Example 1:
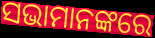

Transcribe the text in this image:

ସଭାମାନଙ୍କରେ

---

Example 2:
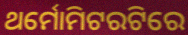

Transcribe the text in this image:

ଥର୍ମୋମିଟରଟିରେ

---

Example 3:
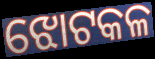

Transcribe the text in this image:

ଝୋଟକଳ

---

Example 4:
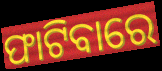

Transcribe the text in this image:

ଫାଟିବାରେ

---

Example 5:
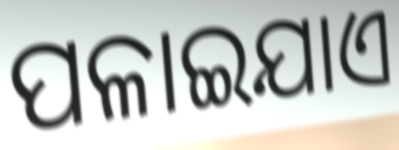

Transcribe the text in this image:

ପଳାଇଯାଏ